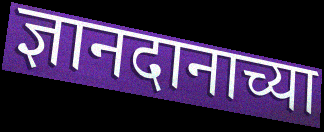
ज्ञानदानाच्या